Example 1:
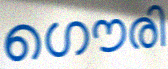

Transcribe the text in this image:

ഗൌരി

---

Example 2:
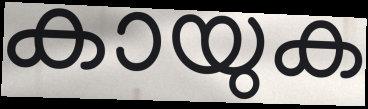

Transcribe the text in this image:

കായുക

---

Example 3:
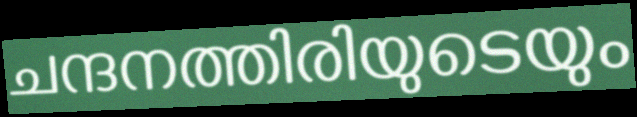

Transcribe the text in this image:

ചന്ദനത്തിരിയുടെയും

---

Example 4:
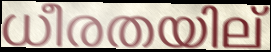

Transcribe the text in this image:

ധീരതയില്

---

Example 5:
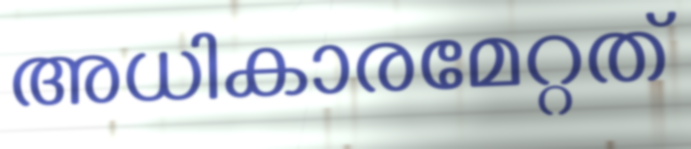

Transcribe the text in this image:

അധികാരമേറ്റത്